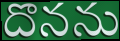
దొనను